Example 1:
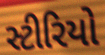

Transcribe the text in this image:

સ્ટીરિયો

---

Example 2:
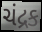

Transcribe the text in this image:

ચંદ્રક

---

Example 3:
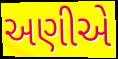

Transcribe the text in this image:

અણીએ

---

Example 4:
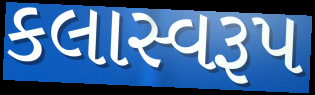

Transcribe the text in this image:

કલાસ્વરૂપ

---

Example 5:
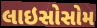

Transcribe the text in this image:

લાઇસોસોમ